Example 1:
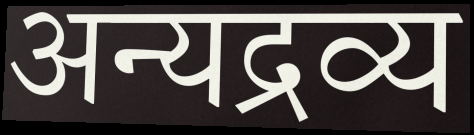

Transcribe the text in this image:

अन्यद्रव्य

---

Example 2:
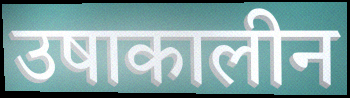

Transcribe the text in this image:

उषाकालीन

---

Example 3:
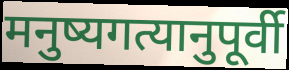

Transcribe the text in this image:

मनुष्यगत्यानुपूर्वी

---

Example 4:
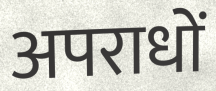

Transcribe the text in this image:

अपराधों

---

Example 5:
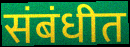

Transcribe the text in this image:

संबंधीत